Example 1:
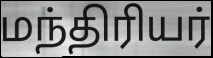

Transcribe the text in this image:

மந்திரியர்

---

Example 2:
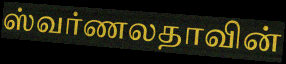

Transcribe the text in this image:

ஸ்வர்ணலதாவின்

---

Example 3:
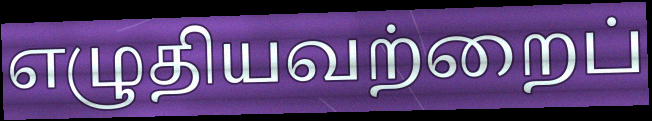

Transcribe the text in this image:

எழுதியவற்றைப்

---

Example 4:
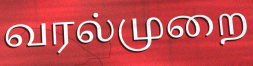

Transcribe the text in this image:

வரல்முறை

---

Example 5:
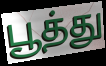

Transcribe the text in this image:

பூத்து